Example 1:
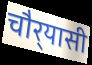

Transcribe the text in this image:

चौर्‍यासी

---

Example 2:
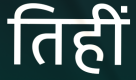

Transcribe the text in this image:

तिहीं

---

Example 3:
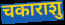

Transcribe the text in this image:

चकाराशु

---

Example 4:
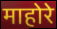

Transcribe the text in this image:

माहोरे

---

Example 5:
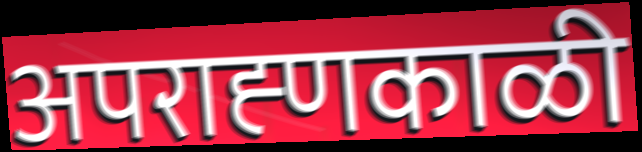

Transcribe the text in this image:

अपराह्णकाळी